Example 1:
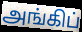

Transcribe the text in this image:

அங்கிப்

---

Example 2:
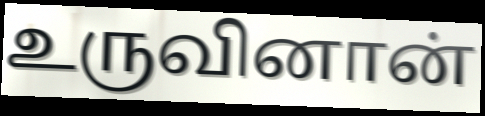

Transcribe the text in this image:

உருவினான்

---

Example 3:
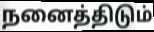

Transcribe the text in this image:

நனைத்திடும்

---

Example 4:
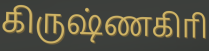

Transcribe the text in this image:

கிருஷ்ணகிரி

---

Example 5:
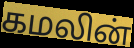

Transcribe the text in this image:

கமலின்